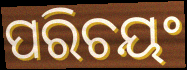
ପରିଚୟଂ